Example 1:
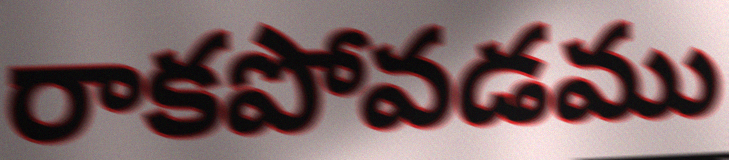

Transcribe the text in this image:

రాకపోవడము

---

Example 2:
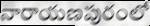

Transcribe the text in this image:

నారాయణపురంలో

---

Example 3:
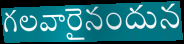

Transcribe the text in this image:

గలవారైనందున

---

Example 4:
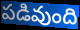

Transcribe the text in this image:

పడివుంది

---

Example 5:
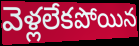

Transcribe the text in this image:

వెళ్లలేకపోయిన